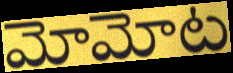
మోమోట